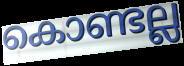
കൊണ്ടല്ല